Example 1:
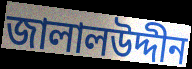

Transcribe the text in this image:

জালালউদ্দীন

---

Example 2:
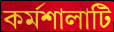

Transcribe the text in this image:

কর্মশালাটি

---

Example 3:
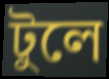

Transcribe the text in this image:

টুলে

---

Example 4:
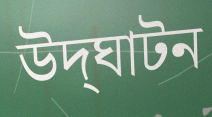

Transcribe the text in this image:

উদ্‌ঘাটন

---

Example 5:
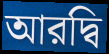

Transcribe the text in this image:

আরদ্বি